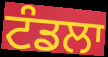
ਟੰਡਲਾ